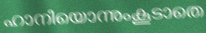
ഹാനിയൊന്നുംകൂടാതെ